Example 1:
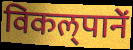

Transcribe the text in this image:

विकल्पानें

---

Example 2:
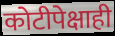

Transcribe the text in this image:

कोटीपेक्षाही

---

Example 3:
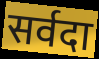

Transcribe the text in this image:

सर्वदा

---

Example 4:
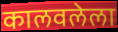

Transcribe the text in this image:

कालवलेला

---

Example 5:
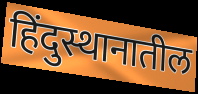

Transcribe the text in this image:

हिंदुस्थानातील